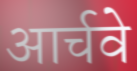
आर्चवे